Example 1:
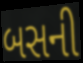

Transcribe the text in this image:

બસની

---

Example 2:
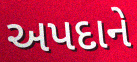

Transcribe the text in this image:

અપદાને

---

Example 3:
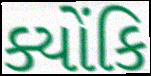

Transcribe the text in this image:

ક્યોંકિ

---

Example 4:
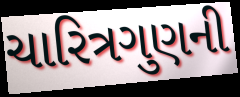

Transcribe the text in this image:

ચારિત્રગુણની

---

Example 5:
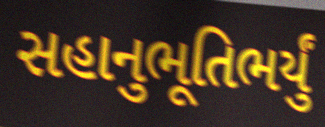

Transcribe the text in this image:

સહાનુભૂતિભર્યું